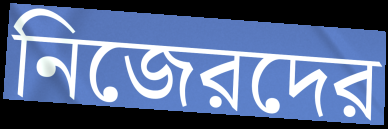
নিজেরদের